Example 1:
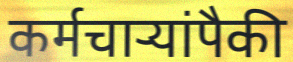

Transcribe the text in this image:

कर्मचार्‍यांपैकी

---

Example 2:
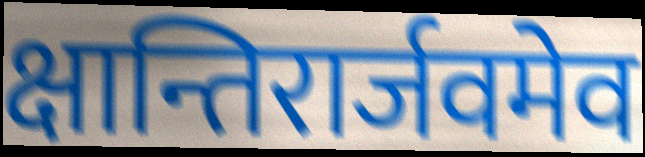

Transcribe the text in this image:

क्षान्तिरार्जवमेव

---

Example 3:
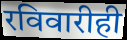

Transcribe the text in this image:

रविवारीही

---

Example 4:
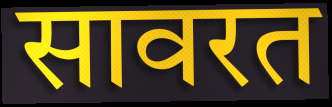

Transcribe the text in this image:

सावरत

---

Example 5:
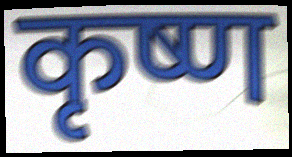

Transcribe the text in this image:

कृष्ण